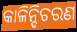
କାଳିନ୍ଦିଚରଣ